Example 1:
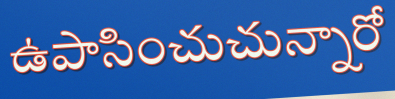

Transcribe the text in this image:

ఉపాసించుచున్నారో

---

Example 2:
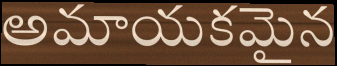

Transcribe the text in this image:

అమాయకమైన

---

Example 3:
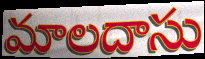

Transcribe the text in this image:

మాలదాసు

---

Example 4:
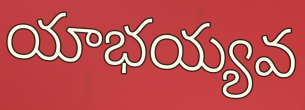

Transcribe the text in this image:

యాభయ్యవ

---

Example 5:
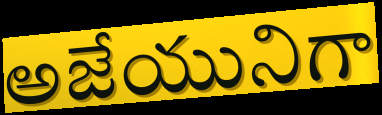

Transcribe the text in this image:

అజేయునిగా